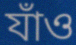
যাঁও